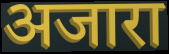
अजारा